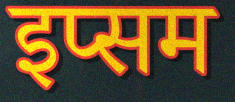
इप्सम